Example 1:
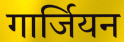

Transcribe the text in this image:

गार्जियन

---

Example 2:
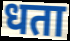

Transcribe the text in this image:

धता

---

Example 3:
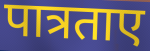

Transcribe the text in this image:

पात्रताए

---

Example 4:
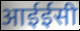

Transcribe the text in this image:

आईईसी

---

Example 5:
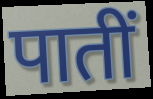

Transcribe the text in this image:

पातीं